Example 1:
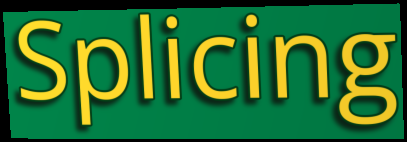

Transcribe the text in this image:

Splicing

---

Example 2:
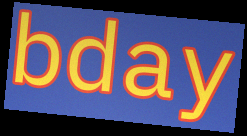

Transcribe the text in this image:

bday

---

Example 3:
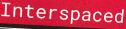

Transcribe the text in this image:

Interspaced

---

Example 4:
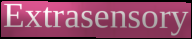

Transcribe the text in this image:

Extrasensory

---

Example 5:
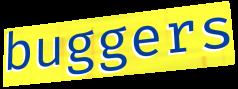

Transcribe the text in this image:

buggers